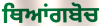
ਥਿਆਂਗਬੋਚ